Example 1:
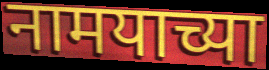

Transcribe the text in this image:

नामयाच्या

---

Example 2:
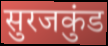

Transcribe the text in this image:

सुरजकुंड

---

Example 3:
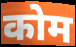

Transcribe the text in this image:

कोम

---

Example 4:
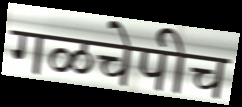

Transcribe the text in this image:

गळचेपीच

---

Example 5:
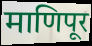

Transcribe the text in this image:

माणिपूर